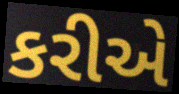
કરીએ